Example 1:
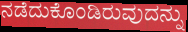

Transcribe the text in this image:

ನಡೆದುಕೊಂಡಿರುವುದನ್ನು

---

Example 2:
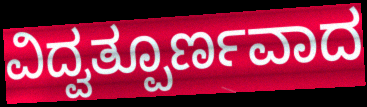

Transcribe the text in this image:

ವಿದ್ವತ್ಪೂರ್ಣವಾದ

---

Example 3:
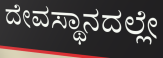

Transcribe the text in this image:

ದೇವಸ್ಥಾನದಲ್ಲೇ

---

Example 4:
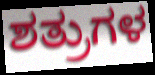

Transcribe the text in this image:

ಶತ್ರುಗಳ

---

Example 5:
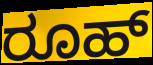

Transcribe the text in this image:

ರೂಹ್